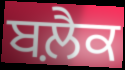
ਬਲ਼ੈਕ